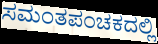
ಸಮಂತಪಂಚಕದಲ್ಲಿ